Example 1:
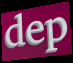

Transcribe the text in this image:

dep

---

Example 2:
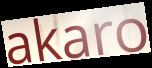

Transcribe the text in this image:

akaro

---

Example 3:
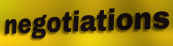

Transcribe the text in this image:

negotiations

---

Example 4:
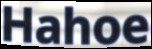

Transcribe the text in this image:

Hahoe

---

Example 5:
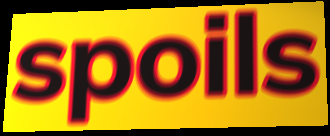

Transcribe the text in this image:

spoils